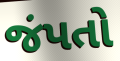
જંપતો